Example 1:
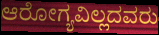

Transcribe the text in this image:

ಆರೋಗ್ಯವಿಲ್ಲದವರು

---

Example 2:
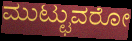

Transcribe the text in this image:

ಮುಟ್ಟುವರೋ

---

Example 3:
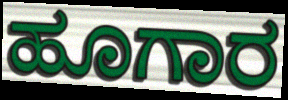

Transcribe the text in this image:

ಹೂಗಾರ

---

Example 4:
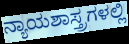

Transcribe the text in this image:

ನ್ಯಾಯಶಾಸ್ತ್ರಗಳಲ್ಲಿ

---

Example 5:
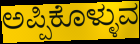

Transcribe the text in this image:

ಅಪ್ಪಿಕೊಳ್ಳುವ